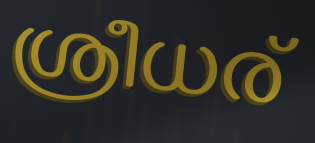
ശ്രീധര്